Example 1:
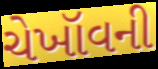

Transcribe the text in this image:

ચેખૉવની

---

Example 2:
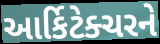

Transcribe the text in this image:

આર્કિટેક્ચરને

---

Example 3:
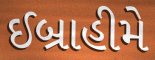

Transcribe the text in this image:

ઈબ્રાહીમે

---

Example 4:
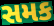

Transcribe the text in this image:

સમક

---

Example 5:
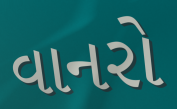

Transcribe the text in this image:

વાનરો